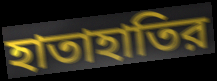
হাতাহাতির